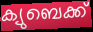
ക്യുബെക്ക്